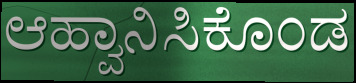
ಆಹ್ವಾನಿಸಿಕೊಂಡ